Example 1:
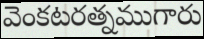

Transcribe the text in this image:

వెంకటరత్నముగారు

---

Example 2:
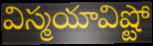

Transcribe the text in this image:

విస్మయావిష్టో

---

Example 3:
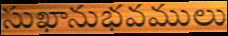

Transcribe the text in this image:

సుఖానుభవములు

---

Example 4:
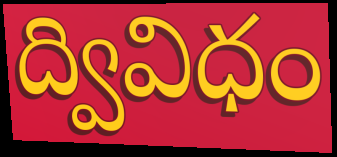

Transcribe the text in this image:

ద్వివిధం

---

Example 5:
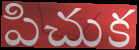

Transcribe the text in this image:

పిచుక